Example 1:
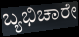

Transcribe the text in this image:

ಬ್ಯಭಿಚಾರೇ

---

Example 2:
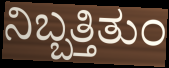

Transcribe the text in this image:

ನಿಬ್ಬತ್ತಿತುಂ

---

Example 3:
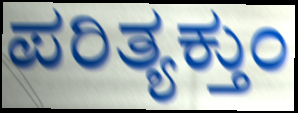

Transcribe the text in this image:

ಪರಿತ್ಯಕ್ತುಂ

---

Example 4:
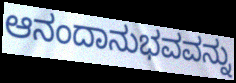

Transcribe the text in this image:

ಆನಂದಾನುಭವವನ್ನು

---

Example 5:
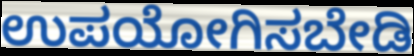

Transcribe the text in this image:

ಉಪಯೋಗಿಸಬೇಡಿ